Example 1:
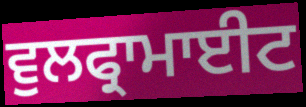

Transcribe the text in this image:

ਵੁਲਫ੍ਰਾਮਾਈਟ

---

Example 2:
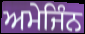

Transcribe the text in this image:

ਅਮੇਜਿੰਨ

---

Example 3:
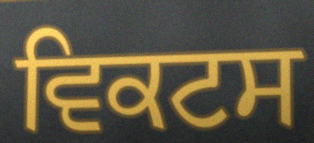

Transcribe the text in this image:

ਵਿਕਟਸ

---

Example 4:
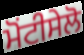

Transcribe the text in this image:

ਮੋਂਟੀਸੇਲੋ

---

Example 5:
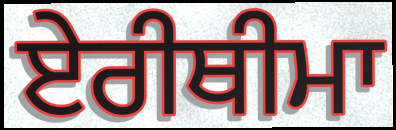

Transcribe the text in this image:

ਏਰੀਥੀਮਾ